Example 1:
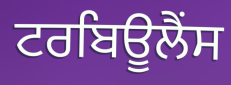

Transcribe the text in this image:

ਟਰਬਿਊਲੈਂਸ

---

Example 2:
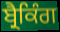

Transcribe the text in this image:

ਬ੍ਰੈਕਿੰਗ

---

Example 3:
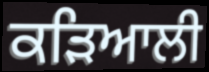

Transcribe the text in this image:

ਕੜਿਆਲੀ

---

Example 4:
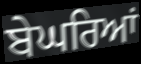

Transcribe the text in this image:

ਬੇਘਰਿਆਂ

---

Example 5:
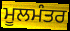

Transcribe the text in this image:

ਮੂਲਮੰਤਰ